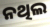
ନଥିଲ